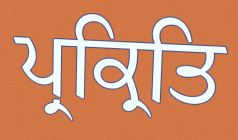
ਪ੍ਰਕ੍ਰਿਤਿ